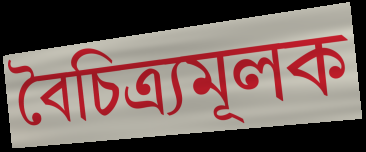
বৈচিত্ৰ্যমূলক